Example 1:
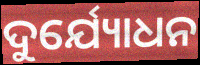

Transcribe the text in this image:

ଦୁର୍ଯ୍ୟୋଧନ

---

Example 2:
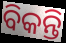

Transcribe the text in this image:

ବିକନ୍ତି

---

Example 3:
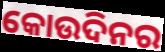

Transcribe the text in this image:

କୋଉଦିନର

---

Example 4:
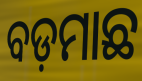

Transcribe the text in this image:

ବଡ଼ମାଛ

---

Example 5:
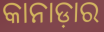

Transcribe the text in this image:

କାନାଡ଼ାର